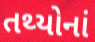
તથ્યોનાં